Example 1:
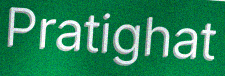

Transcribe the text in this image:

Pratighat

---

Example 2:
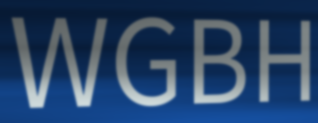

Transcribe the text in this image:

WGBH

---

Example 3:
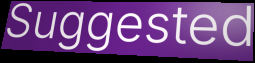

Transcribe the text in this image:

Suggested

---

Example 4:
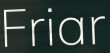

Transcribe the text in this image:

Friar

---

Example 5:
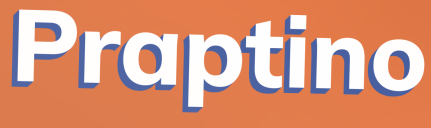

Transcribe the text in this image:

Praptino